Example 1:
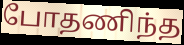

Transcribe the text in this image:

போதணிந்த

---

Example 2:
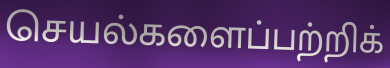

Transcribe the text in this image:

செயல்களைப்பற்றிக்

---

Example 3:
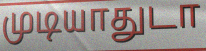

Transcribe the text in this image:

முடியாதுடா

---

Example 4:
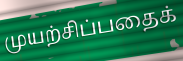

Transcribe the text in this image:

முயற்சிப்பதைக்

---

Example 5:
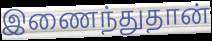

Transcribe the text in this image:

இணைந்துதான்